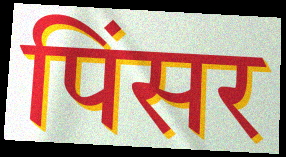
पिंसर